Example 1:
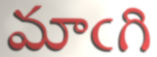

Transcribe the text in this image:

మాఁగి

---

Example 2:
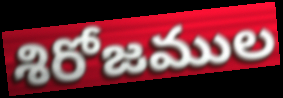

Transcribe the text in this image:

శిరోజముల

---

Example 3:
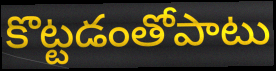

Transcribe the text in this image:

కొట్టడంతోపాటు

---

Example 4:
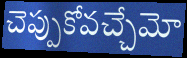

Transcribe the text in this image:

చెప్పుకోవచ్చేమో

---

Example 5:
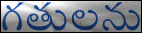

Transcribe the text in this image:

గతులను